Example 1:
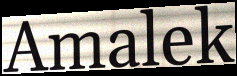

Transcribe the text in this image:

Amalek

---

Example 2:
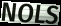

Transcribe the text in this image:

NOLS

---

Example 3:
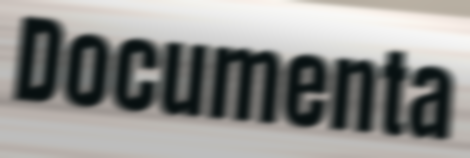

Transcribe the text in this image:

Documenta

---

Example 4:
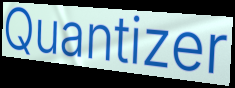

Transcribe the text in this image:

Quantizer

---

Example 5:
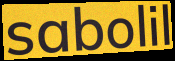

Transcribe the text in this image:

sabolil